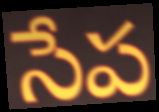
సేప